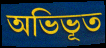
অভিভূত